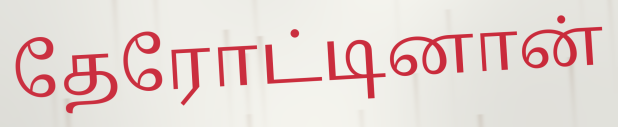
தேரோட்டினான்